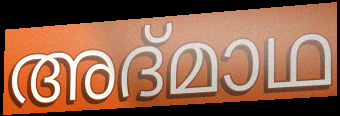
അദ്മാഥ